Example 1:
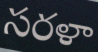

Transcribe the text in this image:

సరళా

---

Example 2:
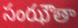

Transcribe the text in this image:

సంఝౌతా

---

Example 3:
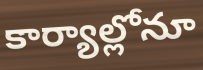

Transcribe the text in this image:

కార్యాల్లోనూ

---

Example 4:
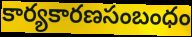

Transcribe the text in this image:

కార్యకారణసంబంధం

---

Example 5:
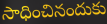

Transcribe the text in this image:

సాధించినందుకు